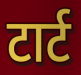
टार्ट